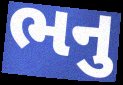
ભનુ